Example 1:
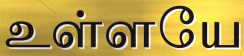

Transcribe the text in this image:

உள்ளயே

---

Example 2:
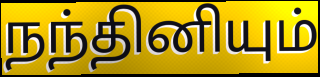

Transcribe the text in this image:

நந்தினியும்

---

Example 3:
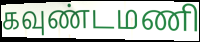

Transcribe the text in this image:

கவுண்டமணி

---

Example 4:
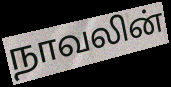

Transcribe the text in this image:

நாவலின்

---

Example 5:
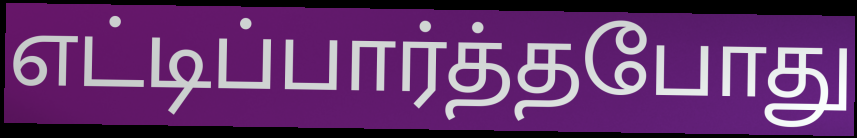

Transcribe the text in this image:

எட்டிப்பார்த்தபோது